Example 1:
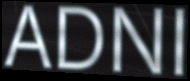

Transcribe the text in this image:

ADNI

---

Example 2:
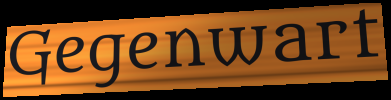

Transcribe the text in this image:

Gegenwart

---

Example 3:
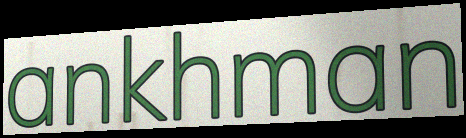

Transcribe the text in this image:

ankhman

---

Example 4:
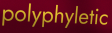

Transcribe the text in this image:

polyphyletic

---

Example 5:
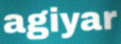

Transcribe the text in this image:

agiyar